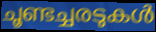
ചൂണ്ടച്ചരടുകൾ